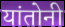
यांतोनी